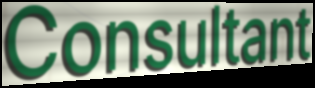
Consultant